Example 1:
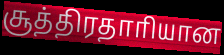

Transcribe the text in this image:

சூத்திரதாரியான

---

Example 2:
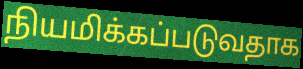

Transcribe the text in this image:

நியமிக்கப்படுவதாக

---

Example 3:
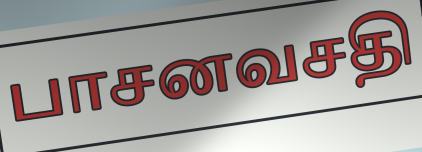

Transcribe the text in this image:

பாசனவசதி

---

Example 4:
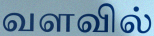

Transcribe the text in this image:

வளவில்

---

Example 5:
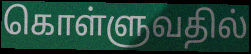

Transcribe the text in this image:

கொள்ளுவதில்